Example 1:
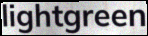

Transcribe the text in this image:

lightgreen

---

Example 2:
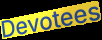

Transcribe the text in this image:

Devotees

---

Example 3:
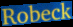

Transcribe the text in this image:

Robeck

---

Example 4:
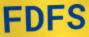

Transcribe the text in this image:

FDFS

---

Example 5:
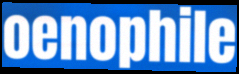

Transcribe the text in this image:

oenophile